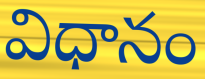
విధానం